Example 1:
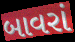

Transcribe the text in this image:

બાવરાં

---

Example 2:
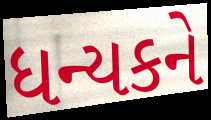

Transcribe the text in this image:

ધન્યકને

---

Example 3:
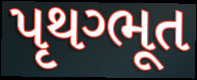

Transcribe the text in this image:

પૃથગ્ભૂત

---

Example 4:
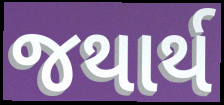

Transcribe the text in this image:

જથાર્થ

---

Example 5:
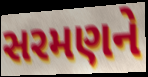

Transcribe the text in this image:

સરમણને